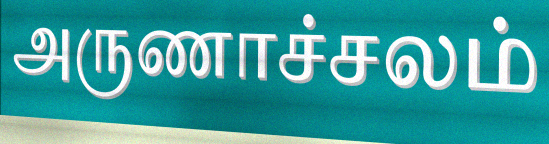
அருணாச்சலம்